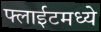
फ्लाईटमध्ये